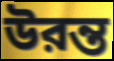
উরন্ত